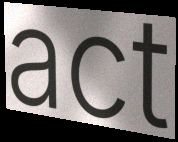
act